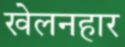
खेलनहार